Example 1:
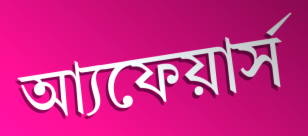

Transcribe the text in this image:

আ্যফেয়ার্স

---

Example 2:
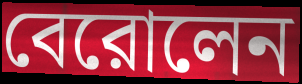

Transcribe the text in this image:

বেরোলেন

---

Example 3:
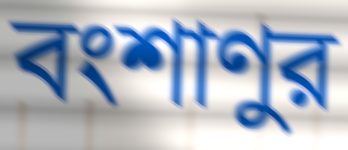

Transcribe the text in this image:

বংশাণুর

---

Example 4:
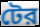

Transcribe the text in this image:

টের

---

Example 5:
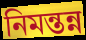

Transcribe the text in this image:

নিমন্তন্ন